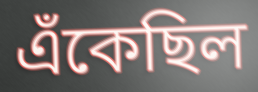
এঁকেছিল